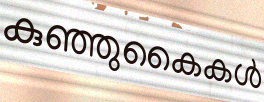
കുഞ്ഞുകൈകൾ